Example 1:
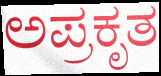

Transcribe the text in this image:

ಅಪ್ರಕೃತ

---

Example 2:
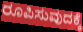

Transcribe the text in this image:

ರೂಪಿಸುವುದಕ್ಕೆ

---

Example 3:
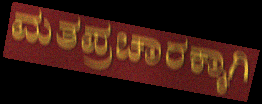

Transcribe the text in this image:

ಮತಪ್ರಚಾರಕ್ಕಾಗಿ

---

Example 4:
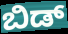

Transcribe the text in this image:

ಬಿಡ್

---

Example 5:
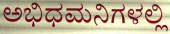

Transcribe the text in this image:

ಅಭಿಧಮನಿಗಳಲ್ಲಿ